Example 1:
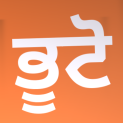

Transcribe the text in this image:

ਭੂਟੋ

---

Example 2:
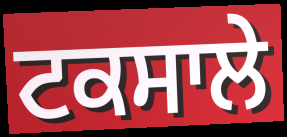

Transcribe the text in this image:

ਟਕਸਾਲੇ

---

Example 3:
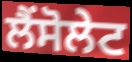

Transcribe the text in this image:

ਲੈਂਸੋਲੇਟ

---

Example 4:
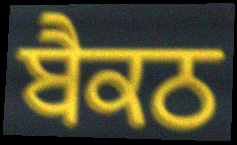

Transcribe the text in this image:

ਬੈਕਠ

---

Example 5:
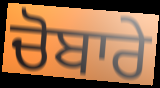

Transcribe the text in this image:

ਚੋਬਾਰੇ